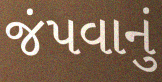
જંપવાનું